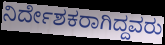
ನಿರ್ದೇಶಕರಾಗಿದ್ದವರು